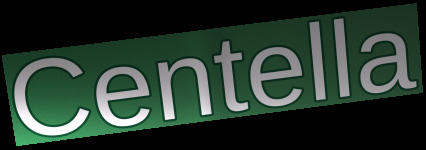
Centella